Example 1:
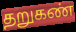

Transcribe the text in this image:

தறுகண்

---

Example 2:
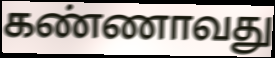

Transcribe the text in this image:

கண்ணாவது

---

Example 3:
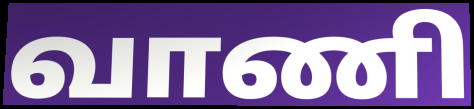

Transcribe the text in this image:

வாணி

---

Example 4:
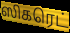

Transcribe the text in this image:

ஸிகரெட்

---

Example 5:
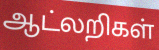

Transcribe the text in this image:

ஆட்லறிகள்